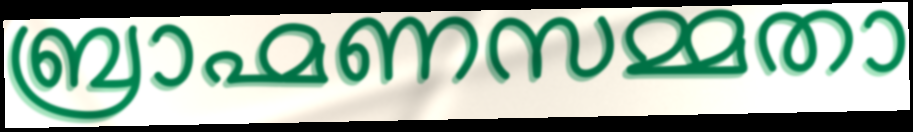
ബ്രാഹ്മണസമ്മതാ